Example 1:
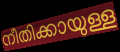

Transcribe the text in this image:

നീതിക്കായുള്ള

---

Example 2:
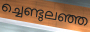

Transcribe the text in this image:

ച്ചെണ്ടുലഞ്ഞ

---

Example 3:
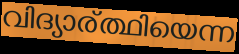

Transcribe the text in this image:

വിദ്യാര്ത്ഥിയെന്ന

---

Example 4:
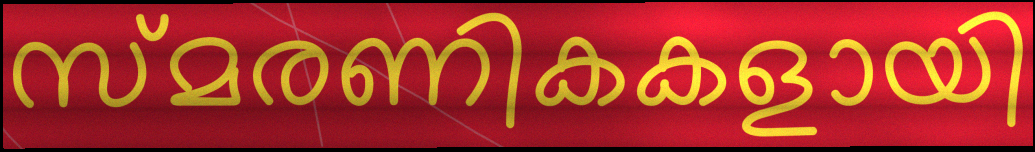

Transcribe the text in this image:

സ്മരണികകളായി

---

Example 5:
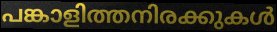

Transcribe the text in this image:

പങ്കാളിത്തനിരക്കുകൾ